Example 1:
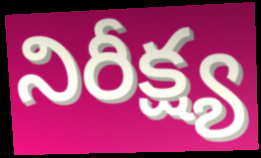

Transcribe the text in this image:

నిరీక్ష్య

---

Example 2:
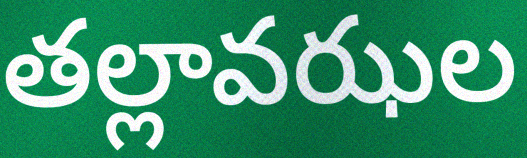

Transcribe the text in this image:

తల్లావఝల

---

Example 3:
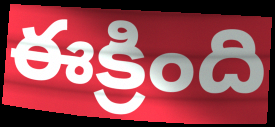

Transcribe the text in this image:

ఈక్రింది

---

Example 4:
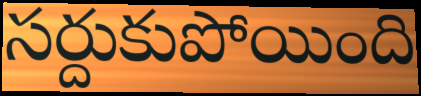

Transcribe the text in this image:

సర్దుకుపోయింది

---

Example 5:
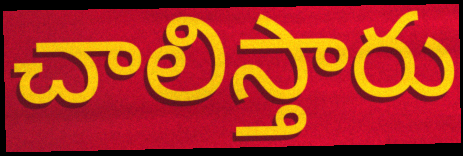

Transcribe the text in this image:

చాలిస్తారు